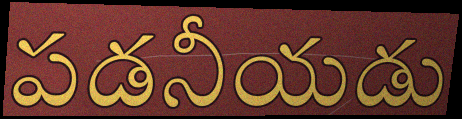
పడనీయడు